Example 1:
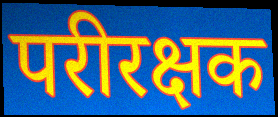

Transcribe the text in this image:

परीरक्षक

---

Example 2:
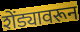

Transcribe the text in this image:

शेंड्यावरून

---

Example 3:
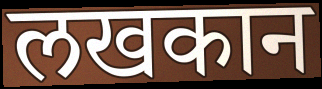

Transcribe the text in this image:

लखकान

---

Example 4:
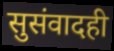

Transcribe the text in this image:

सुसंवादही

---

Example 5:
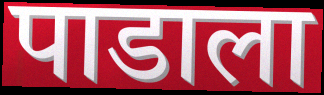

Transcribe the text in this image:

पाडाला